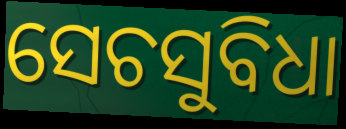
ସେଚସୁବିଧା